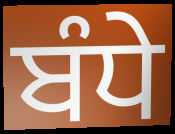
ਬੰਧੇ